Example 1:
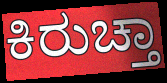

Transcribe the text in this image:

ಕಿರುಚ್ತಾ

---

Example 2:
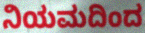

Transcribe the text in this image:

ನಿಯಮದಿಂದ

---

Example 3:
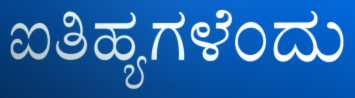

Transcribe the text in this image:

ಐತಿಹ್ಯಗಳೆಂದು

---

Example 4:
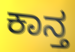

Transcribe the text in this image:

ಕಾನ್ತ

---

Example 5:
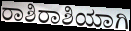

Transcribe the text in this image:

ರಾಶಿರಾಶಿಯಾಗಿ